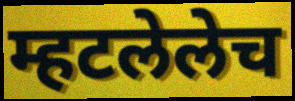
म्हटलेलेच